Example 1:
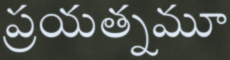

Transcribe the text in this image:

ప్రయత్నమూ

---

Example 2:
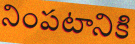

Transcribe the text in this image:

నింపటానికి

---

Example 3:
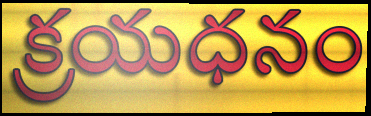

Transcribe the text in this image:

క్రయధనం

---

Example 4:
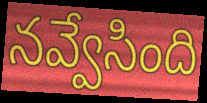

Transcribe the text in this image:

నవ్వేసింది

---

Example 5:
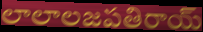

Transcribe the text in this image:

లాలాలజపతిరాయ్